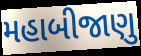
મહાબીજાણુ